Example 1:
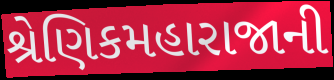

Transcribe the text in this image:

શ્રેણિકમહારાજાની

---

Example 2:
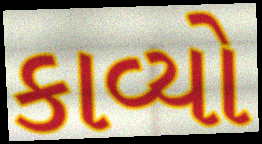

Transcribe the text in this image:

કાવ્યો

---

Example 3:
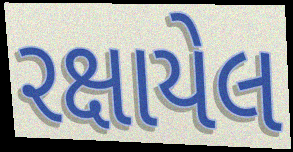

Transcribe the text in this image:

રક્ષાયેલ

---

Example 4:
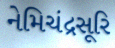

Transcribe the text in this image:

નેમિચંદ્રસૂરિ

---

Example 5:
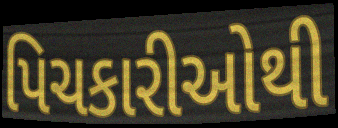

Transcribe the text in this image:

પિચકારીઓથી